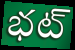
భట్